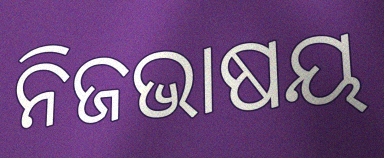
ନିଜଭାଷୟ